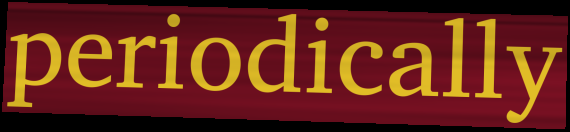
periodically